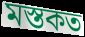
মস্তকত